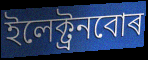
ইলেক্ট্ৰনবোৰ